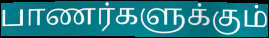
பாணர்களுக்கும்